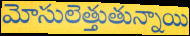
మోసులెత్తుతున్నాయి